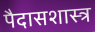
पैदासशास्त्र